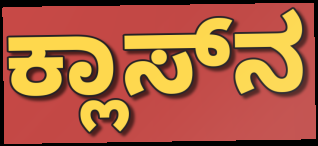
ಕ್ಲಾಸ್‌ನ